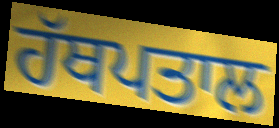
ਹੱਥਪਤਾਲ